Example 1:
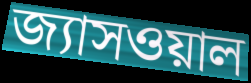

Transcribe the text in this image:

জ্যাসওয়াল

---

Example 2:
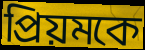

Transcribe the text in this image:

প্রিয়মকে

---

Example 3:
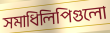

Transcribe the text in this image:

সমাধিলিপিগুলো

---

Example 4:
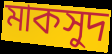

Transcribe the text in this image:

মাকসুদ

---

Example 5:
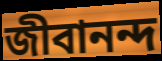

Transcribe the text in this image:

জীবানন্দ